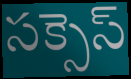
సక్సెస్